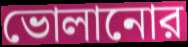
ভোলানোর